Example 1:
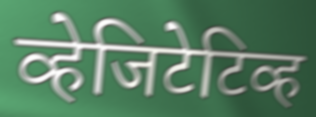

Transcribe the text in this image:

व्हेजिटेटिव्ह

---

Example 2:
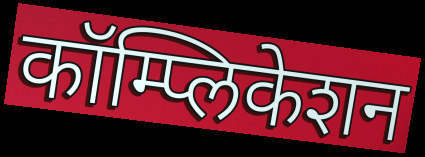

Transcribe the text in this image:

कॉम्प्लिकेशन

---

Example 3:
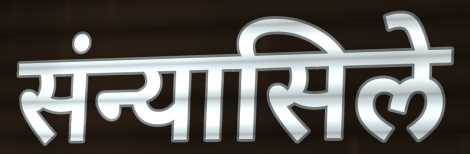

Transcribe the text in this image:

संन्यासिले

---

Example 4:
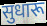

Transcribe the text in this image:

सुधारू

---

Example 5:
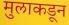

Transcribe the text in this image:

मुलाकडून